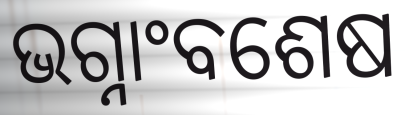
ଭଗ୍ନାଂବଶେଷ